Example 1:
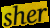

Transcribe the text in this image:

sher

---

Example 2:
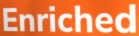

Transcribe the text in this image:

Enriched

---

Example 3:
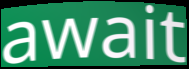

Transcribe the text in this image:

await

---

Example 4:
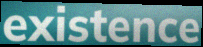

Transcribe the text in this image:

existence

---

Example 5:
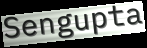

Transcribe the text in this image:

Sengupta